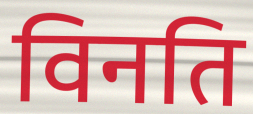
विनति